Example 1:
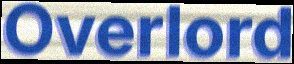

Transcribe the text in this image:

Overlord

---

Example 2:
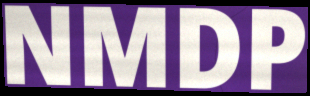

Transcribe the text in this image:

NMDP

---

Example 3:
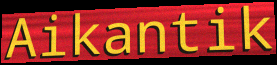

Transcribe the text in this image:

Aikantik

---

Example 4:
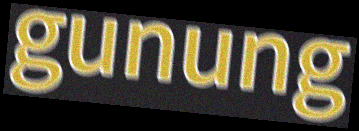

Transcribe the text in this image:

gunung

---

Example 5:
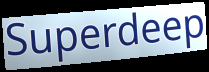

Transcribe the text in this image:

Superdeep